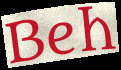
Beh